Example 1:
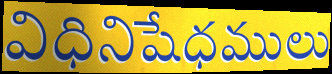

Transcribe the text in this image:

విధినిషేధములు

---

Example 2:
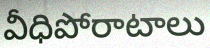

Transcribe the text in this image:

వీధిపోరాటాలు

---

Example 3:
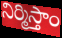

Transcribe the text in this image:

నిర్మిస్తాం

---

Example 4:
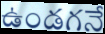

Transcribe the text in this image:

ఉండగనే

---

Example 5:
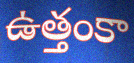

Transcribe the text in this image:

ఉత్తంకా